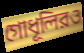
গোধূলিরও